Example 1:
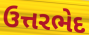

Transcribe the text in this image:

ઉત્તરભેદ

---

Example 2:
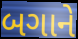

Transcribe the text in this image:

બગાને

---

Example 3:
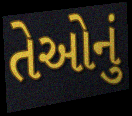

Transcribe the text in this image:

તેઓનું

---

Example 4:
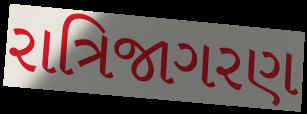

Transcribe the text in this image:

રાત્રિજાગરણ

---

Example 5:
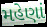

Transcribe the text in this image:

મહેણાં